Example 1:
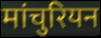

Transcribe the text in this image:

मांचुरियन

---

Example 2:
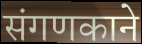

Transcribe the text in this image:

संगणकाने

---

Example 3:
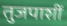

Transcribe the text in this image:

तुजपाशीं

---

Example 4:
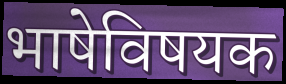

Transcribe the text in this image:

भाषेविषयक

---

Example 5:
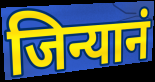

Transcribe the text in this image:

जिन्यानं